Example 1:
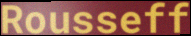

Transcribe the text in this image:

Rousseff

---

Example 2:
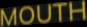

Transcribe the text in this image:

MOUTH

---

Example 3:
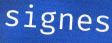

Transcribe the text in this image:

signes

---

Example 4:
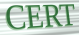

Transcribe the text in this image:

CERT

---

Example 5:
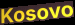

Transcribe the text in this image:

Kosovo